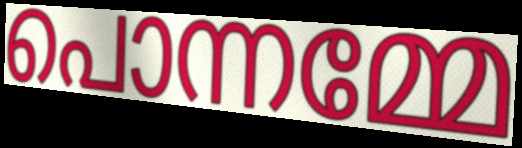
പൊന്നമ്മേ